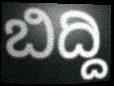
ಬಿದ್ದಿ